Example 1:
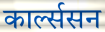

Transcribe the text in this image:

कार्ल्ससन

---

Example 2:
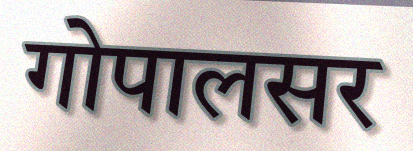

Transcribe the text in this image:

गोपालसर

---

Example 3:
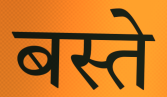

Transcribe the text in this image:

बस्ते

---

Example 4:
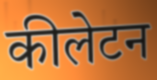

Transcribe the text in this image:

कीलेटन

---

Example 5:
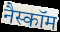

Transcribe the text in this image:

नैस्कॉम